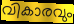
വികാരവും